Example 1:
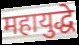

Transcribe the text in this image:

महायुद्धे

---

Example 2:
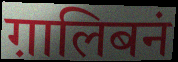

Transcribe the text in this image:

ग़ालिबनं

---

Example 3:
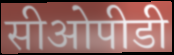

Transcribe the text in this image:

सीओपीडी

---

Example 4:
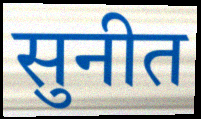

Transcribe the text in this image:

सुनीत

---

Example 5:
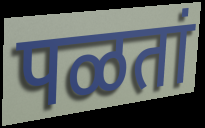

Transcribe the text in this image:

पळतां